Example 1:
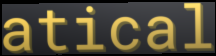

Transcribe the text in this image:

atical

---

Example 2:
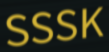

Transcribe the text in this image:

SSSK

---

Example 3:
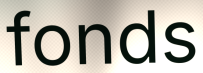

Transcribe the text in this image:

fonds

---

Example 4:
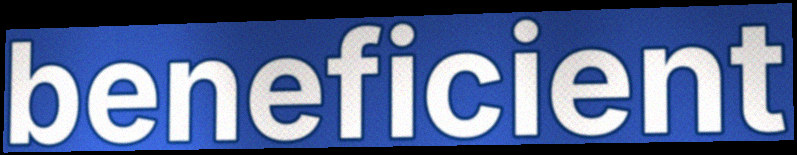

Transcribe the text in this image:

beneficient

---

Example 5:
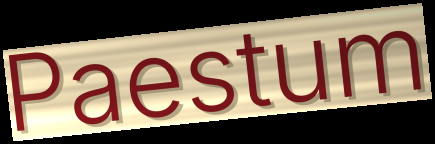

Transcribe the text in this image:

Paestum